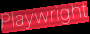
Playwright